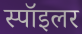
स्पॉइलर